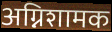
अग्निशामक